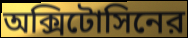
অক্সিটোসিনের